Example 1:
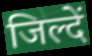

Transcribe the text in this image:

जिल्दें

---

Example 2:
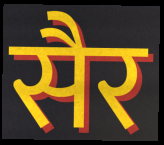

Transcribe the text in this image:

सैर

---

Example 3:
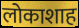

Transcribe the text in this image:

लोकाशाह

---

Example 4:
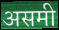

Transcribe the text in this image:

असमी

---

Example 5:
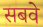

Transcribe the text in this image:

सबवे